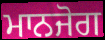
ਮਾਨਜੋਗ